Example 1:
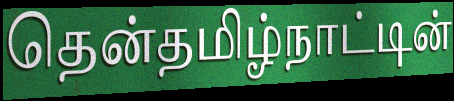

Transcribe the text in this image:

தென்தமிழ்நாட்டின்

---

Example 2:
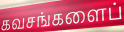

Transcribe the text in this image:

கவசங்களைப்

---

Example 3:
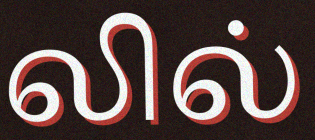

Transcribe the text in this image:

லில்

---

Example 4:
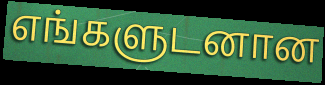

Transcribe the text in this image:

எங்களுடனான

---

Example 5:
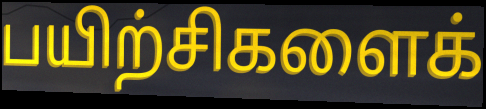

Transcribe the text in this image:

பயிற்சிகளைக்